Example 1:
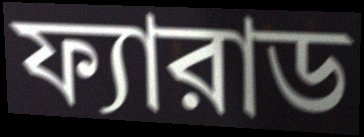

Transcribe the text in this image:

ফ্যারাড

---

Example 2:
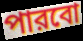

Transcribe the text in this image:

পারবো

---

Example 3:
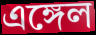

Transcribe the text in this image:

এঙ্গেল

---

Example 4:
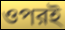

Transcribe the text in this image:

ওপরই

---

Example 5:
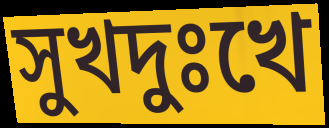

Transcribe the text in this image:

সুখদুঃখে